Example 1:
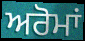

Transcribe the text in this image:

ਅਰੋਮਾਂ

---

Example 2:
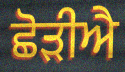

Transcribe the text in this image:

ਛੋੜੀਐ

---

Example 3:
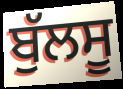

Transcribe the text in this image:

ਬੁੱਲਸੂ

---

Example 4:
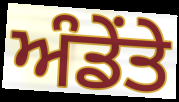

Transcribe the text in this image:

ਅੰਡੇਂਤੇ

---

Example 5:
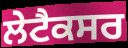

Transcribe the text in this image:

ਲੇਟੈਕਸਰ